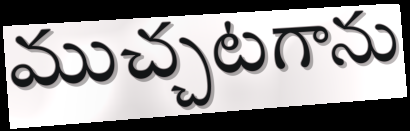
ముచ్చటగాను